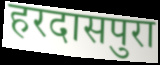
हरदासपुरा